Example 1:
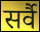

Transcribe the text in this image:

सर्वै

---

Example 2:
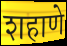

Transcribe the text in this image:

शहाणे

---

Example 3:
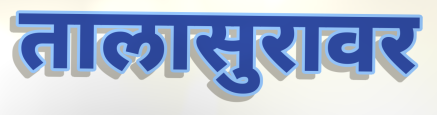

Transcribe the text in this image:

तालासुरावर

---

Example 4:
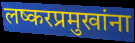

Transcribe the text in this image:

लष्करप्रमुखांना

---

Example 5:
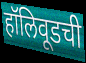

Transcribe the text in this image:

हॉलिवूडची